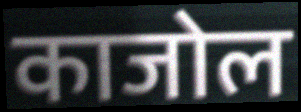
काजोल